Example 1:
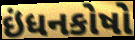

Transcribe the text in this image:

ઇંધનકોષો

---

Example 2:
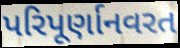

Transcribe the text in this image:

પરિપૂર્ણાનવરત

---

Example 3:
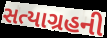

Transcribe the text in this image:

સત્યાગ્રહની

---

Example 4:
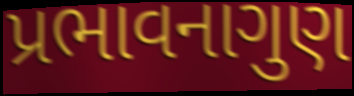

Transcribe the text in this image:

પ્રભાવનાગુણ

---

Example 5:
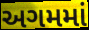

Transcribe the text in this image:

અગમમાં